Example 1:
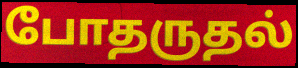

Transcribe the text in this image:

போதருதல்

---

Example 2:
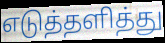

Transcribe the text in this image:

எடுத்தளித்து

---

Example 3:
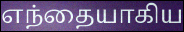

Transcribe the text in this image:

எந்தையாகிய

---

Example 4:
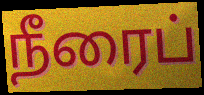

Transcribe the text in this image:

நீரைப்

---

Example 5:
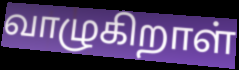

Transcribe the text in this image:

வாழுகிறாள்